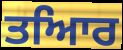
ਤਆਿਰ